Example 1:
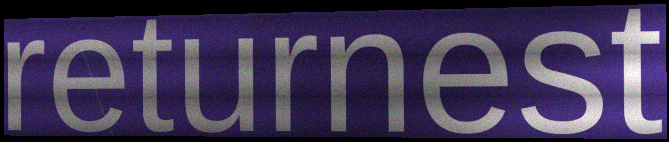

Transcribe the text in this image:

returnest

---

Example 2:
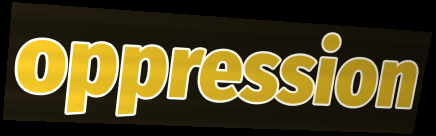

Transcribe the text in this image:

oppression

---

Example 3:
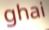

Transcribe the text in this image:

ghai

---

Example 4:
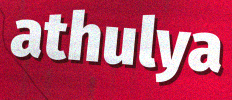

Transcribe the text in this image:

athulya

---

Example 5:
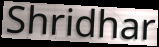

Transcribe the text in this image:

Shridhar